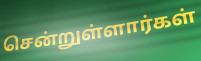
சென்றுள்ளார்கள்